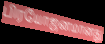
பிரயோஜனமானது